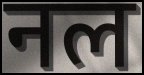
नल